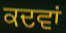
ਕਦਵਾਂ